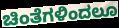
ಚಿಂತೆಗಳಿಂದಲೂ